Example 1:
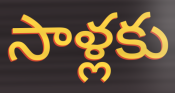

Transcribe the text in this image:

సాళ్లకు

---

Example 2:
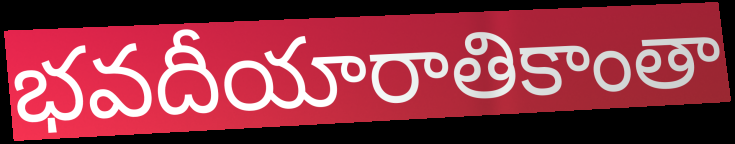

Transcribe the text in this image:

భవదీయారాతికాంతా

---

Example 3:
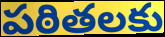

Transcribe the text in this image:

పఠితలకు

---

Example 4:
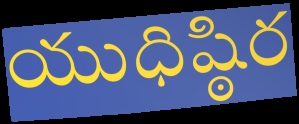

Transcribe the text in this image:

యుధిష్ఠిర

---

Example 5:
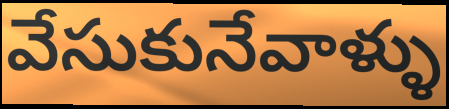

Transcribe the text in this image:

వేసుకునేవాళ్ళు